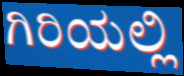
ಗಿರಿಯಲ್ಲಿ